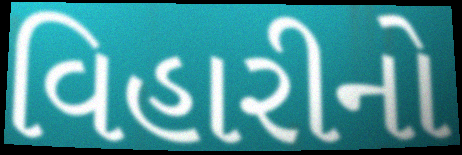
વિહારીનો